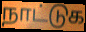
நாட்டுக